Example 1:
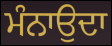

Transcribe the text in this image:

ਮੰਨਾਉਦਾ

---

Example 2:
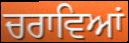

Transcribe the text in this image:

ਚਰਾਵਿਆਂ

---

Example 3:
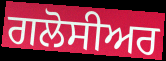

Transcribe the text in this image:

ਗਲੋਸੀਅਰ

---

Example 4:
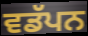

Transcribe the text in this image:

ਵਡੱਪਨ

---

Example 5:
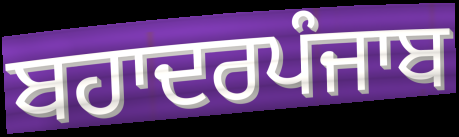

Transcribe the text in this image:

ਬਹਾਦਰਪੰਜਾਬ